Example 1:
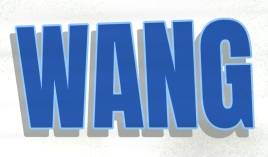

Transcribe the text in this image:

WANG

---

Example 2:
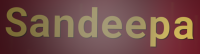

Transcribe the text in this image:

Sandeepa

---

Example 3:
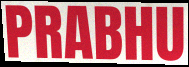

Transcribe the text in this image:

PRABHU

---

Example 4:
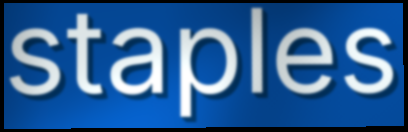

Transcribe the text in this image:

staples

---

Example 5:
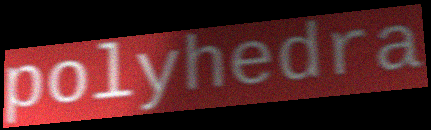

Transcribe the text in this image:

polyhedra